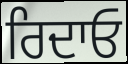
ਰਿਦਾਓ